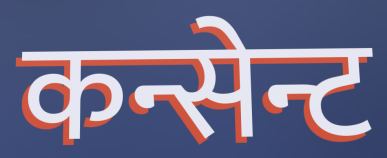
कन्सेन्ट